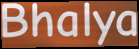
Bhalya